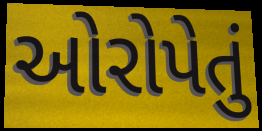
ઓરોપેતું